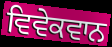
ਵਿਵੇਕਵਾਨ